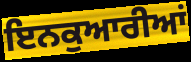
ਇਨਕੁਆਰੀਆਂ